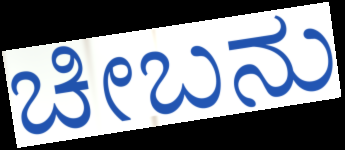
ಚೀಬನು